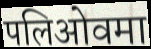
पलिओवमा